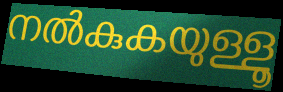
നൽകുകയുള്ളൂ